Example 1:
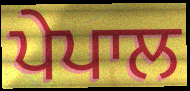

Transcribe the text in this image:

ਪੇਪਾਲ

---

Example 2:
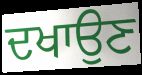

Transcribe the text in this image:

ਦਖਾਉਣ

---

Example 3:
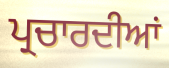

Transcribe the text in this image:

ਪ੍ਰਚਾਰਦੀਆਂ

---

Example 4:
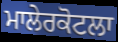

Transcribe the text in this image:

ਮਾਲੇਰਕੋਟਲਾ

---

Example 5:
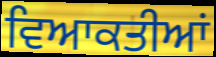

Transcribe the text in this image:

ਵਿਆਕਤੀਆਂ